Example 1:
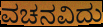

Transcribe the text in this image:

ವಚನವಿದು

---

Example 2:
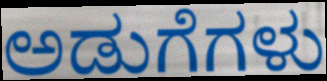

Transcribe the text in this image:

ಅಡುಗೆಗಳು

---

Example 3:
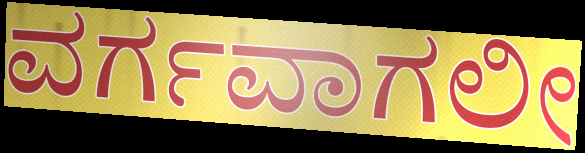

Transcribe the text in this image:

ವರ್ಗವಾಗಲೀ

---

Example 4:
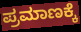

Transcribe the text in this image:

ಪ್ರಮಾಣಕ್ಕೆ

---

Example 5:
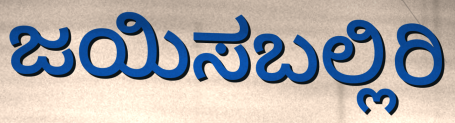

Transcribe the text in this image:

ಜಯಿಸಬಲ್ಲಿರಿ